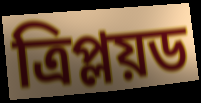
ত্রিপ্লয়ড